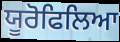
ਯੂਰੋਫਿਲਿਆ